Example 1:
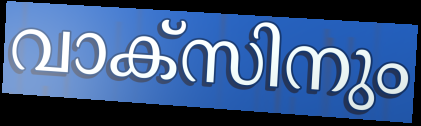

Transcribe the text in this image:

വാക്സിനും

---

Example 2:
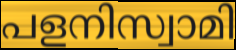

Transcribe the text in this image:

പളനിസ്വാമി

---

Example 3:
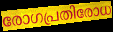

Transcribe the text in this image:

രോഗപ്രതിരോധ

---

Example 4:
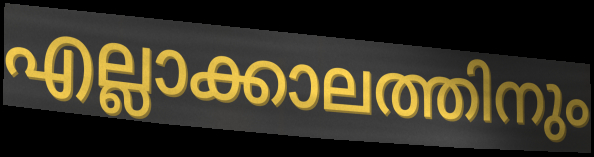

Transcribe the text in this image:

എല്ലാക്കാലത്തിനും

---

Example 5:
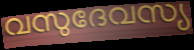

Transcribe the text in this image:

വസുദേവസ്യ